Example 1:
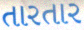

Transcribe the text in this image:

તારતાર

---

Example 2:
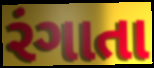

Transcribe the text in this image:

રંગાતા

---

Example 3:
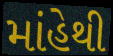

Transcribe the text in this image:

માંહેથી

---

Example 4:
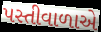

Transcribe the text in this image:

પસ્તીવાળાએ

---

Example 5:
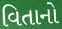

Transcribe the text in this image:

વિતાનો